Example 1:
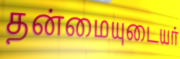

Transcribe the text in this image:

தன்மையுடையர்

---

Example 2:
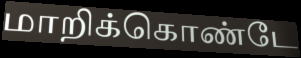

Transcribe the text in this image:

மாறிக்கொண்டே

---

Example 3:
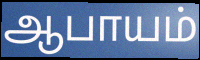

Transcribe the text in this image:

ஆபாயம்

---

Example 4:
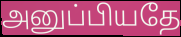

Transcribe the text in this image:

அனுப்பியதே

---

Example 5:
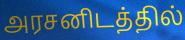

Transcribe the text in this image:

அரசனிடத்தில்